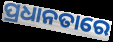
ପ୍ରଧାନତାରେ